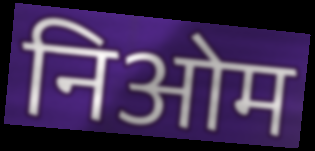
निओम